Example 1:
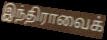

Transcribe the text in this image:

இந்திராவைக்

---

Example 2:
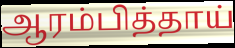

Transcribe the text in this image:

ஆரம்பித்தாய்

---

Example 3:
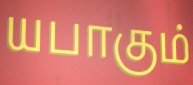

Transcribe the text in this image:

யபாகும்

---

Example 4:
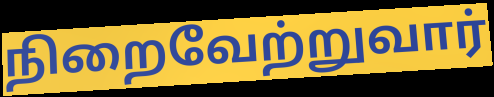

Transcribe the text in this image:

நிறைவேற்றுவார்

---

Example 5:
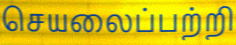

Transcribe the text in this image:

செயலைப்பற்றி